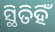
ସ୍ଥିତିହିଁ